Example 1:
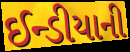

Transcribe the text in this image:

ઈન્ડીયાની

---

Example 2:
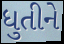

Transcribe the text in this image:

ધુતીને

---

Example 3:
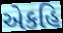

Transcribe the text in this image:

એકહિ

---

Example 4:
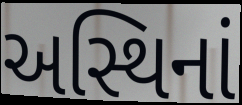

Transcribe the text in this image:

અસ્થિનાં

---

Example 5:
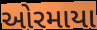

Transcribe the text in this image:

ઓરમાયા